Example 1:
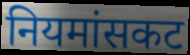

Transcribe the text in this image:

नियमांसकट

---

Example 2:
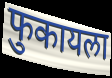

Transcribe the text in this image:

फुकायला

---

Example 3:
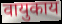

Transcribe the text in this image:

वायुकाय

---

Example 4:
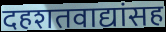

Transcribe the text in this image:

दहशतवाद्यांसह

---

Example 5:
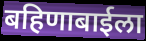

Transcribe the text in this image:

बहिणाबाईला